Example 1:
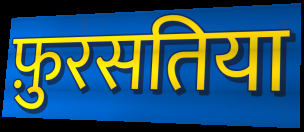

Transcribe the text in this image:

फ़ुरसतिया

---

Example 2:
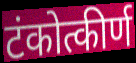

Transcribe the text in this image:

टंकोत्कीर्ण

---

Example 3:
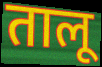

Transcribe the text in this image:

तालू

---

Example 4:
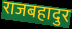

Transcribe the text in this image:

राजबहादुर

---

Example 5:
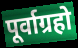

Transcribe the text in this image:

पूर्वाग्रहो